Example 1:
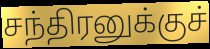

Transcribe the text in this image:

சந்திரனுக்குச்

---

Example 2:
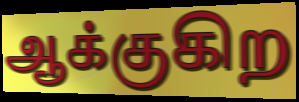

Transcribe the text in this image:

ஆக்குகிற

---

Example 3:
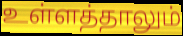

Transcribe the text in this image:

உள்ளத்தாலும்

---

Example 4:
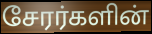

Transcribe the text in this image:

சேரர்களின்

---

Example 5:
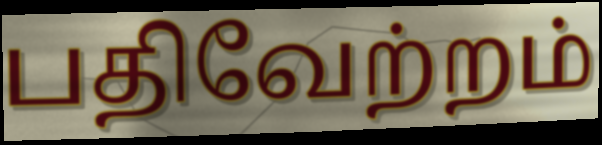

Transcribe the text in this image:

பதிவேற்றம்